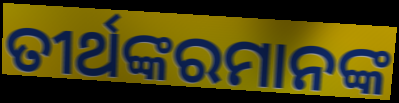
ତୀର୍ଥଙ୍କରମାନଙ୍କ